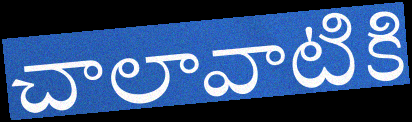
చాలావాటికి